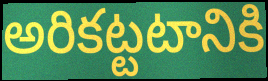
అరికట్టటానికి